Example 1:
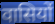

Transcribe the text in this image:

वासियों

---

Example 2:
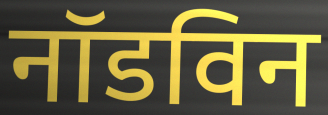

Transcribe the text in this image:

नॉडविन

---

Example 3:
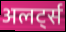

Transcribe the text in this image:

अलर्ट्स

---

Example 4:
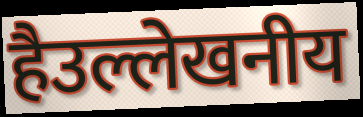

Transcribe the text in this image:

हैउल्लेखनीय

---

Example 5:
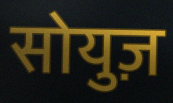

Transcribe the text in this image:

सोयुज़